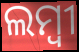
ଲମ୍ବୀ